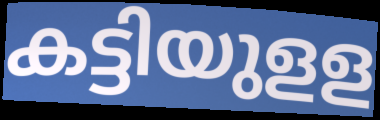
കട്ടിയുളള